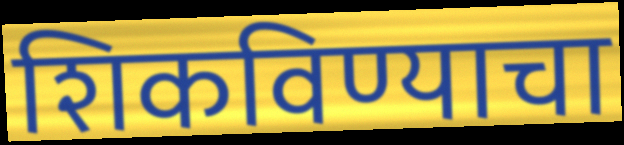
शिकविण्याचा